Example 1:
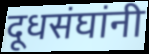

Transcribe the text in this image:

दूधसंघांनी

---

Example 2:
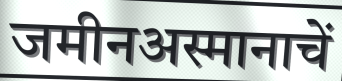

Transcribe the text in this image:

जमीनअस्मानाचें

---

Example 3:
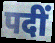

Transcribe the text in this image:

पदीं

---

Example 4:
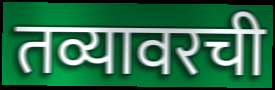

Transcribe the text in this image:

तव्यावरची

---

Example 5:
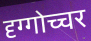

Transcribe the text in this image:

दृग्गोच्चर